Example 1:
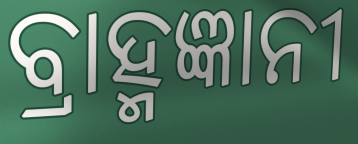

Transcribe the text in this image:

ବ୍ରାହ୍ମଜ୍ଞାନୀ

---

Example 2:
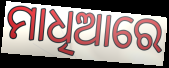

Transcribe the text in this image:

ମାଧିଆରେ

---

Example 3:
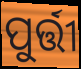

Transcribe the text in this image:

ପୁର୍ତ୍ତୀ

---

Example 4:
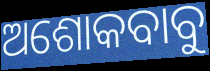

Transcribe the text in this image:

ଅଶୋକବାବୁ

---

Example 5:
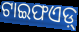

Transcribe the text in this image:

ଟାଇଫଏଡ଼୍